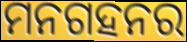
ମନଗହନର